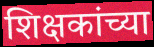
शिक्षकांच्‍या